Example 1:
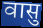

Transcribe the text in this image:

वासु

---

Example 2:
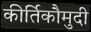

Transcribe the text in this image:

कीर्तिकौमुदी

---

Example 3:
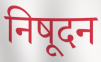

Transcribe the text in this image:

निषूदन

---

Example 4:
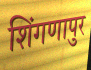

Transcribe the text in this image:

शिंगणापुर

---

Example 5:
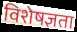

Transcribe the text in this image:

विशेषज्ञता